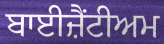
ਬਾਈਜ਼ੈਂਟੀਅਮ